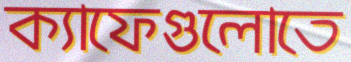
ক্যাফেগুলোতে